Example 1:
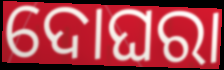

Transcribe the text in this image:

ଦୋଘରା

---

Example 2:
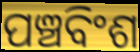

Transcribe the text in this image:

ପଞ୍ଚବିଂଶ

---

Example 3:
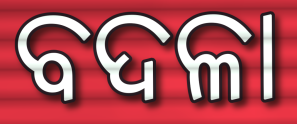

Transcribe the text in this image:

ବଦଳା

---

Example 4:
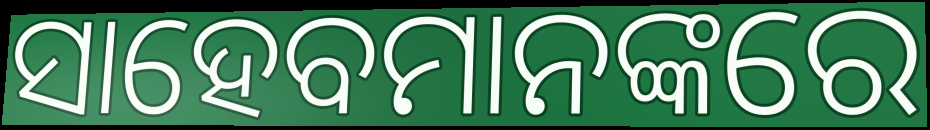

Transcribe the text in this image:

ସାହେବମାନଙ୍କରେ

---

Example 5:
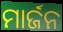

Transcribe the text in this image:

ମାର୍ଜନ